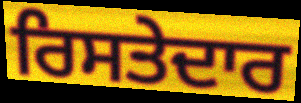
ਰਿਸਤੇਦਾਰ